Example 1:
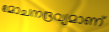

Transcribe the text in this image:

മോചനദ്രവ്യമാണ്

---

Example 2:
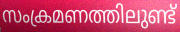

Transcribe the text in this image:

സംക്രമണത്തിലുണ്ട്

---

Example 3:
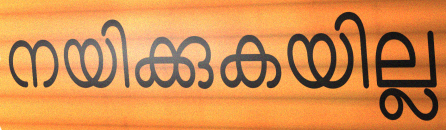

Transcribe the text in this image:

നയിക്കുകയില്ല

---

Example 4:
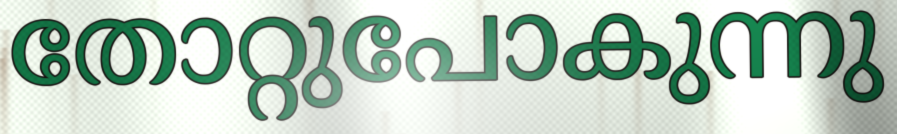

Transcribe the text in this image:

തോറ്റുപോകുന്നു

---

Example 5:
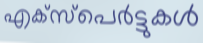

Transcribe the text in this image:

എക്സ്പെർട്ടുകൾ